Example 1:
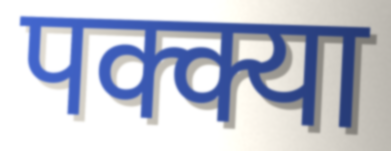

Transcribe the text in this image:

पक्क्या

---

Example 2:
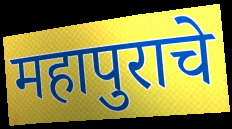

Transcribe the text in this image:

महापुराचे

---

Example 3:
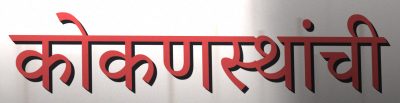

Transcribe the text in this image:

कोकणस्थांची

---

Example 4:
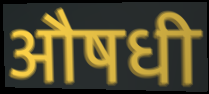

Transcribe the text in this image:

औषधी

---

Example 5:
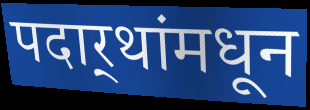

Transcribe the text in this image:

पदार्थांमधून